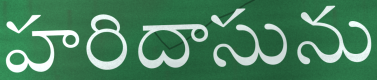
హరిదాసును